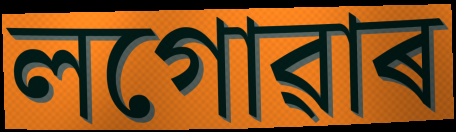
লগোৱাৰ